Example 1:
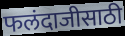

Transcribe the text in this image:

फलंदाजीसाठी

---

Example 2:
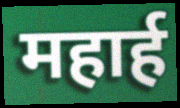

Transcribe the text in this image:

महार्ह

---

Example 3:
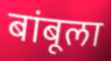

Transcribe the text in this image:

बांबूला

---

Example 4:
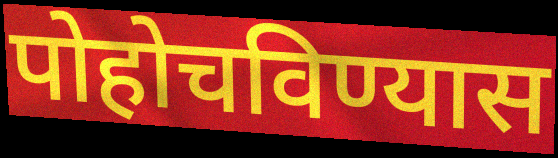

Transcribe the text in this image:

पोहोचविण्यास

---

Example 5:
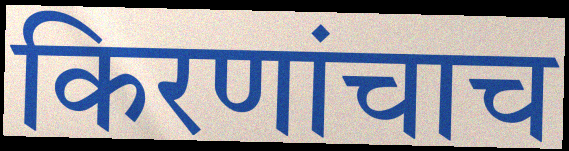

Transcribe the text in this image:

किरणांचाच